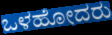
ಒಳಹೋದರು